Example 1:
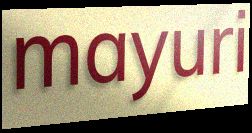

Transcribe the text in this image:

mayuri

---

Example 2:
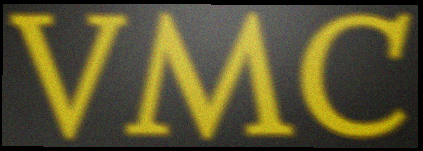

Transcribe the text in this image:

VMC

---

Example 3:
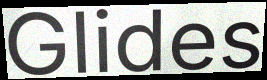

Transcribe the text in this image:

Glides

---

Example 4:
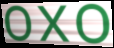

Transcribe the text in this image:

oxo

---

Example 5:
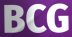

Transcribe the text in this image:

BCG